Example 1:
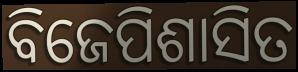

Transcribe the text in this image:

ବିଜେପିଶାସିତ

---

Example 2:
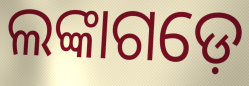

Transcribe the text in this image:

ଲଙ୍କାଗଡ଼େ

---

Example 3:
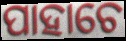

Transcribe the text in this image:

ପାହାଚେ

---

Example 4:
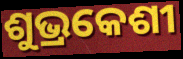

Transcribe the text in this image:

ଶୁଭ୍ରକେଶୀ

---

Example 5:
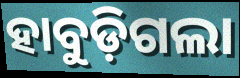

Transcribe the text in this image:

ହାବୁଡ଼ିଗଲା